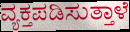
ವ್ಯಕ್ತಪಡಿಸುತ್ತಾಳೆ